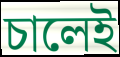
চালেই